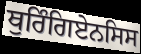
ਥੁਰਿੰਗਿਏਨਸਿਸ